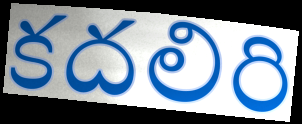
కదలిరి